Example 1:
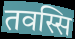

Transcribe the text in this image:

तवस्सि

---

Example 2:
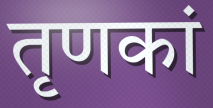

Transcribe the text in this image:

तृणकां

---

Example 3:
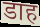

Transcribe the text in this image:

डाह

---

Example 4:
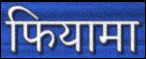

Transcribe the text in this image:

फियामा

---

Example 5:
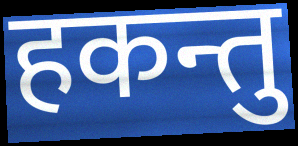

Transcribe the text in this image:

हकन्तु